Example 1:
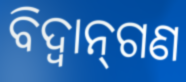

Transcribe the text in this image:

ବିଦ୍ୱାନ୍‌ଗଣ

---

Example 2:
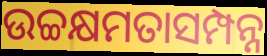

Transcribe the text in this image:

ଉଚ୍ଚକ୍ଷମତାସମ୍ପନ୍ନ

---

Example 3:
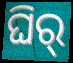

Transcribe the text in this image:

ଘିର୍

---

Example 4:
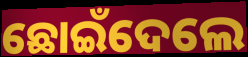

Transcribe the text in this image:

ଛୋଇଁଦେଲେ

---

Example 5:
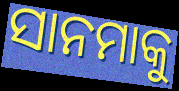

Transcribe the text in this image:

ସାନମାକୁ